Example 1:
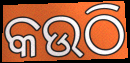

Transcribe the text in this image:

କଉଠି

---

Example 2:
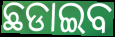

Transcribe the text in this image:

ଛଡାଇବ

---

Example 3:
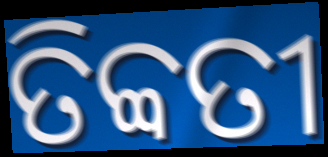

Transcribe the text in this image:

ତିବ୍ବତୀ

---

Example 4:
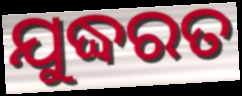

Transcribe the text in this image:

ଯୁଦ୍ଧରତ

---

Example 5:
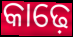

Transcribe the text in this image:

କାଢ଼େ